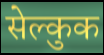
सेल्कुक